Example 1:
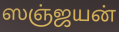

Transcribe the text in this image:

ஸஞ்ஜயன்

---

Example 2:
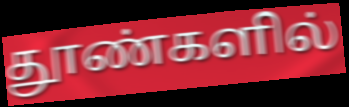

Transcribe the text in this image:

தூண்களில்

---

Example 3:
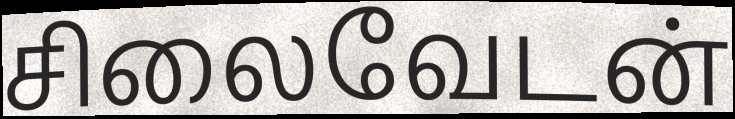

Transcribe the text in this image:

சிலைவேடன்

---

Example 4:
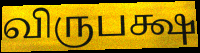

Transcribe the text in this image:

விருபக்ஷ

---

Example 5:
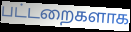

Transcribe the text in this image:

பட்டறைகளாக